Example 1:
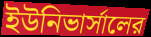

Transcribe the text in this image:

ইউনিভার্সালের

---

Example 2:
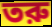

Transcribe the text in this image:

তরু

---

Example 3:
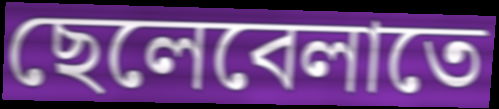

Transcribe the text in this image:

ছেলেবেলাতে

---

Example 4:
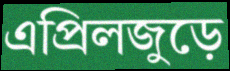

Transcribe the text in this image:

এপ্রিলজুড়ে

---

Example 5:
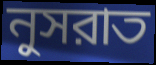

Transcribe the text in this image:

নুসরাত